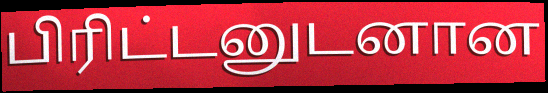
பிரிட்டனுடனான